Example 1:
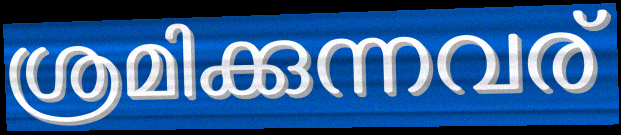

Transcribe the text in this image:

ശ്രമിക്കുന്നവര്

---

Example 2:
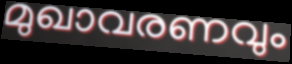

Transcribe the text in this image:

മുഖാവരണവും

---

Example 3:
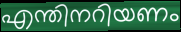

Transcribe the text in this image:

എന്തിനറിയണം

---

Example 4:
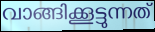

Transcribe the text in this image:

വാങ്ങിക്കൂട്ടുന്നത്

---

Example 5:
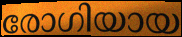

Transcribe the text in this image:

രോഗിയായ